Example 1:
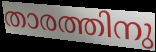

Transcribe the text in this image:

താരത്തിനു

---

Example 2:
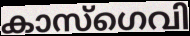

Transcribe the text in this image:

കാസ്ഗെവി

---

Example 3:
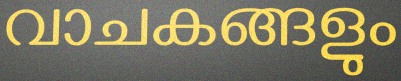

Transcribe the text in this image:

വാചകങ്ങളും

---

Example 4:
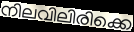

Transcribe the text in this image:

നിലവിലിരിക്കെ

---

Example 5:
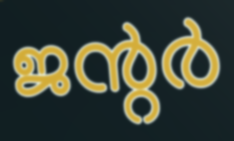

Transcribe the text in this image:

ജന്റർ